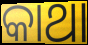
କାଥା